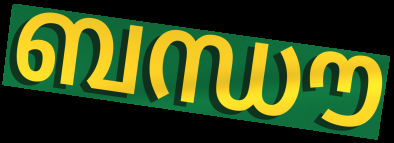
ബന്ധൗ